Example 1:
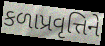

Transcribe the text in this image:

કળાપ્રવૃત્તિને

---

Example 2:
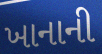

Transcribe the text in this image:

ખાનાની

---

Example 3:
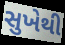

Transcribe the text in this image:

સુખેથી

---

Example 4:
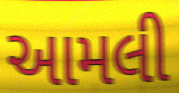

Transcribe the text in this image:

આમલી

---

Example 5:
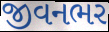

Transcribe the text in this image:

જીવનભર